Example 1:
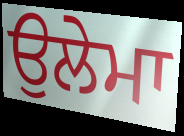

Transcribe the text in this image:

ਉਲੇਮਾ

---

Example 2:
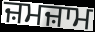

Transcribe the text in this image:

ਜ਼ਮਜ਼ਾਮ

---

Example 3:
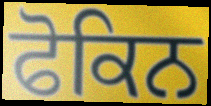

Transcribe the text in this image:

ਫੋਕਿਨ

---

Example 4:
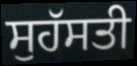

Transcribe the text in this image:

ਸੁਹੱਸਤੀ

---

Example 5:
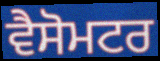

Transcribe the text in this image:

ਵੈਸੋਮਟਰ